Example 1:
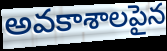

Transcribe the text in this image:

అవకాశాలపైన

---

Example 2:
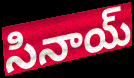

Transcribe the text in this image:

సినాయ్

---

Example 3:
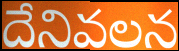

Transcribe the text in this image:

దేనివలన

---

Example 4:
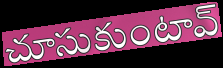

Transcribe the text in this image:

చూసుకుంటావ్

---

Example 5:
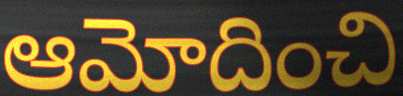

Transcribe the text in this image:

ఆమోదించి